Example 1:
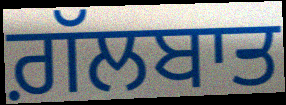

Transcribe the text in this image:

ਗ਼ੱਲਬਾਤ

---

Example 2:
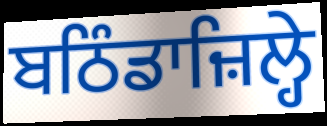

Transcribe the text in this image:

ਬਠਿੰਡਾਜ਼ਿਲ੍ਹੇ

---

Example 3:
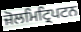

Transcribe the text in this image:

ਜ਼ੋਲਮਿਟ੍ਰਿਪਟਨ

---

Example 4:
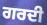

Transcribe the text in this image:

ਗਰਦੀ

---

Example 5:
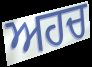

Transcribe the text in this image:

ਅਹਚ